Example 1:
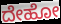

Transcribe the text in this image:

ದೇಹೋ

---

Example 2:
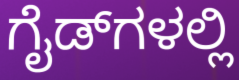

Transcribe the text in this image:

ಗೈಡ್‌ಗಳಲ್ಲಿ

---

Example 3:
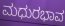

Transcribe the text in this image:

ಮಧುರಭಾವ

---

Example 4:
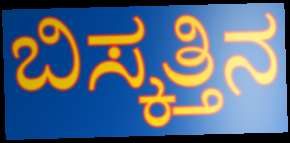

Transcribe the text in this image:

ಬಿಸ್ಕತ್ತಿನ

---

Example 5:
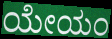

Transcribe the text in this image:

ಯೇಯಂ